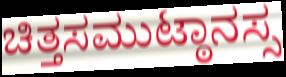
ಚಿತ್ತಸಮುಟ್ಠಾನಸ್ಸ